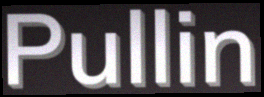
Pullin